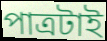
পাত্রটাই